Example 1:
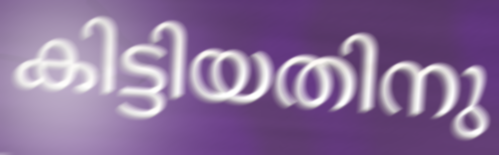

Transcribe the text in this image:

കിട്ടിയതിനു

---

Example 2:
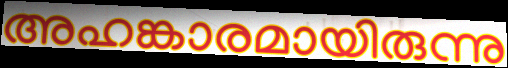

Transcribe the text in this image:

അഹങ്കാരമായിരുന്നു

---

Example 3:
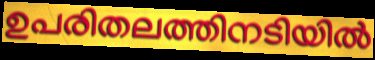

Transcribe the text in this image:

ഉപരിതലത്തിനടിയിൽ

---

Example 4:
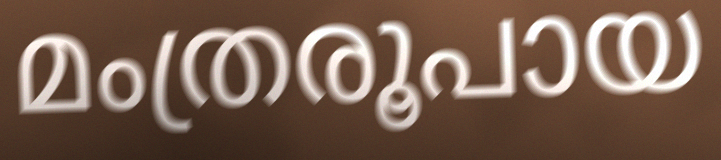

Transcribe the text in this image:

മംത്രരൂപായ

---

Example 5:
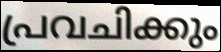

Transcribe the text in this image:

പ്രവചിക്കും